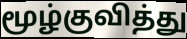
மூழ்குவித்து